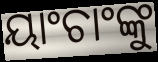
ୟାଂଚାଂଙ୍କୁ